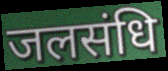
जलसंधि